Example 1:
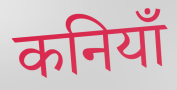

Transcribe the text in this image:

कनियाँ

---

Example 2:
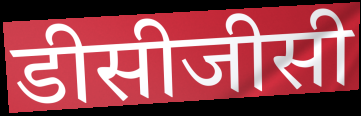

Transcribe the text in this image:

डीसीजीसी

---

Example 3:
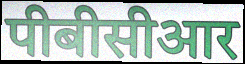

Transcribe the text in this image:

पीबीसीआर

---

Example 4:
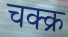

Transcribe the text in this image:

चक्क्र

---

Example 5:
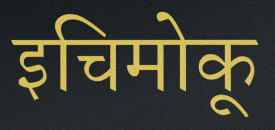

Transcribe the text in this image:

इचिमोकू